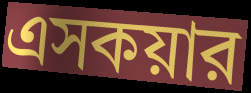
এসকয়ার